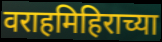
वराहमिहिराच्या